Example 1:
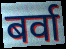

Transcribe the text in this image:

बर्वा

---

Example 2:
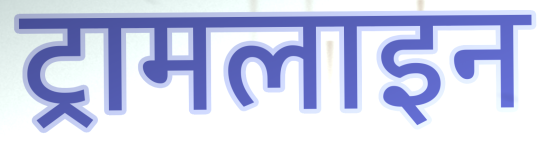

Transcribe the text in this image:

ट्रामलाइन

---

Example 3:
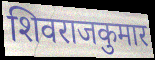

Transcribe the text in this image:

शिवराजकुमार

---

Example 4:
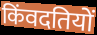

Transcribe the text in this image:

किंवदतियों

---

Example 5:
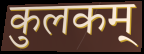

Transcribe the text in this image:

कुलकम्